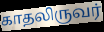
காதலிருவர்